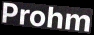
Prohm